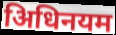
अिधिनयम